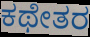
ಕಥೇತರ